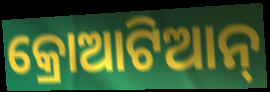
କ୍ରୋଆଟିଆନ୍